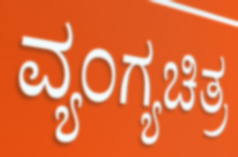
ವ್ಯಂಗ್ಯಚಿತ್ರ